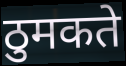
ठुमकते